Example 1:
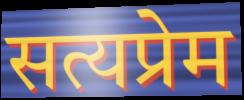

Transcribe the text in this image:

सत्यप्रेम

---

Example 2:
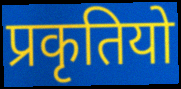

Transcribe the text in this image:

प्रकृतियो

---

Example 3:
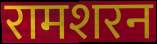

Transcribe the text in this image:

रामशरन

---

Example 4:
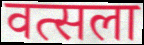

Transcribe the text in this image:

वत्सला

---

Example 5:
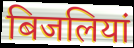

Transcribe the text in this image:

बिजलियां